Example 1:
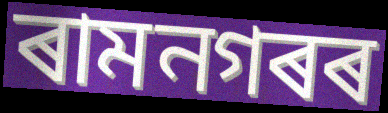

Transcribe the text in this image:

ৰামনগৰৰ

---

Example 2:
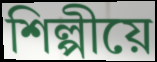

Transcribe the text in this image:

শিল্পীয়ে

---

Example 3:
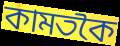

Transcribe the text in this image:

কামতকৈ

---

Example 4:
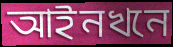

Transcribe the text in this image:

আইনখনে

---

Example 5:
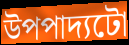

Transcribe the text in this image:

উপপাদ্যটো